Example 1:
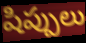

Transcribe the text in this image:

షిప్పులు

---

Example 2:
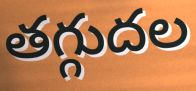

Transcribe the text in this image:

తగ్గుదల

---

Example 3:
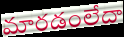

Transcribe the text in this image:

మారడంలేదా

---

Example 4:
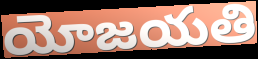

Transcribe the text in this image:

యోజయతి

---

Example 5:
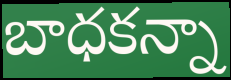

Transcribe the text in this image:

బాధకన్నా